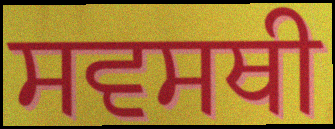
ਸਵਸਥੀ